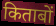
किताबों